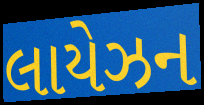
લાયેઝન